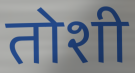
तोशी